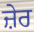
ਜ਼ੇਰ